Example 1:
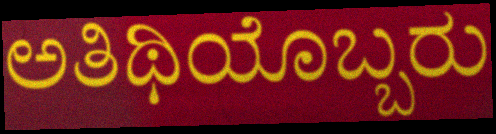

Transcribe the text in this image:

ಅತಿಥಿಯೊಬ್ಬರು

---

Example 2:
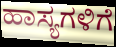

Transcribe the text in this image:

ಹಾಸ್ಯಗಳಿಗೆ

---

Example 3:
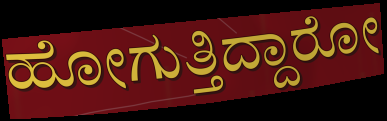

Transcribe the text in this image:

ಹೋಗುತ್ತಿದ್ದಾರೋ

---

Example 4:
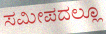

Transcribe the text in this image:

ಸಮೀಪದಲ್ಲೂ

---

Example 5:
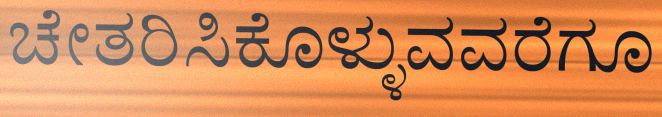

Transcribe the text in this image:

ಚೇತರಿಸಿಕೊಳ್ಳುವವರೆಗೂ